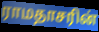
ராமதாசரின்